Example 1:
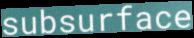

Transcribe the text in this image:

subsurface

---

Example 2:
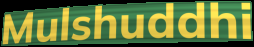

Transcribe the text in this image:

Mulshuddhi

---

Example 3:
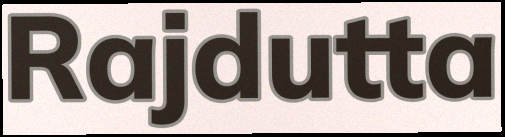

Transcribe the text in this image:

Rajdutta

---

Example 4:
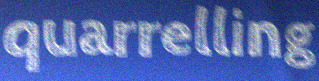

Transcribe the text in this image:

quarrelling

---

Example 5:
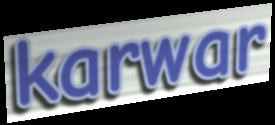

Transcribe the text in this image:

karwar